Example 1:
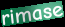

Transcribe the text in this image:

rimase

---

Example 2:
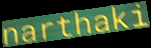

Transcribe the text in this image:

narthaki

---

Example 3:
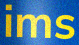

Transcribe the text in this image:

ims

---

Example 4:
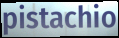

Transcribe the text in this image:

pistachio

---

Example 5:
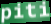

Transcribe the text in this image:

piti